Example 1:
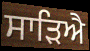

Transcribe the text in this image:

ਸਾੜਿਐ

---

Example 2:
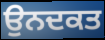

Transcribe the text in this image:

ਉਨਦਕਤ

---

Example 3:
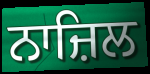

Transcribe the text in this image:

ਨਾਜ਼ਿਲ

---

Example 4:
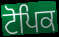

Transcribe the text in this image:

ਟੋਪਿਕ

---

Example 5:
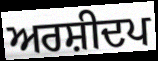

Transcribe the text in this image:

ਅਰਸ਼ੀਦਪ